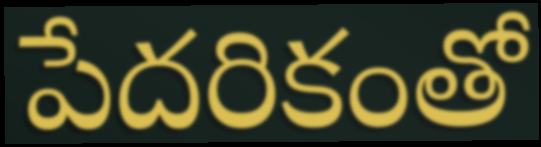
పేదరికంతో